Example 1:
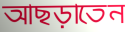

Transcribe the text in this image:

আছড়াতেন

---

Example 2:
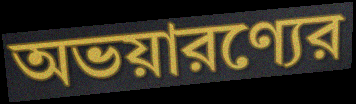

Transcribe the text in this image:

অভয়ারণ্যের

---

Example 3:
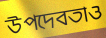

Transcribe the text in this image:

উপদেবতাও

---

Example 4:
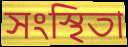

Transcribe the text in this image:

সংস্থিতা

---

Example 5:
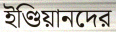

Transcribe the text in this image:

ইণ্ডিয়ানদের